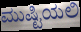
ಮುಷ್ಟಿಯಲಿ